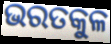
ଭରତକୁଳ